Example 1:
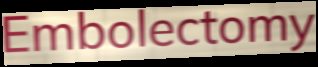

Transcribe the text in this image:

Embolectomy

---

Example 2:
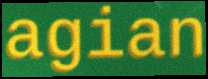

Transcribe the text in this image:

agian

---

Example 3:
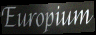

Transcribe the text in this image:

Europium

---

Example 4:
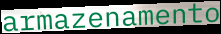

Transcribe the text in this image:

armazenamento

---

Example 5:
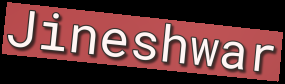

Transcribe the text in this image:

Jineshwar